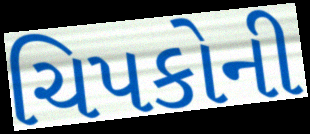
ચિપકોની